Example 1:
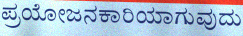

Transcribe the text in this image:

ಪ್ರಯೋಜನಕಾರಿಯಾಗುವುದು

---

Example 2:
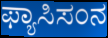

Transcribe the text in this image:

ಫ್ಯಾಸಿಸಂನ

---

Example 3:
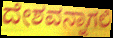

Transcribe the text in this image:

ದೇಶವನ್ನಾಗಲಿ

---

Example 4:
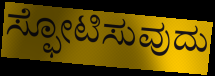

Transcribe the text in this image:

ಸ್ಫೋಟಿಸುವುದು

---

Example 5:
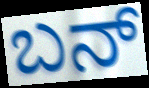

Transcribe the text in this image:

ಬನ್